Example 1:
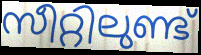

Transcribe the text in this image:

സീറ്റിലുണ്ട്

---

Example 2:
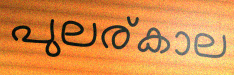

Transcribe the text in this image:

പുലര്കാല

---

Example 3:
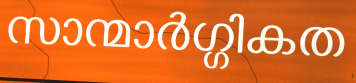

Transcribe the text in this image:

സാന്മാർഗ്ഗികത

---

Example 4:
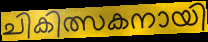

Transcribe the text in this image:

ചികിത്സകനായി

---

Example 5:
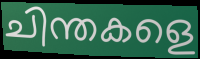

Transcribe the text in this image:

ചിന്തകളെ